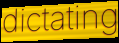
dictating